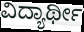
ವಿದ್ಯಾರ್ಥೀ